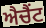
ਐਚੈਂਟ